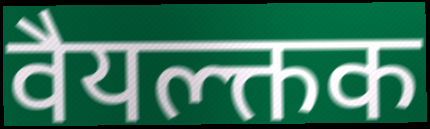
वैयल्क्तक